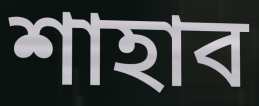
শাহাব